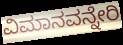
ವಿಮಾನವನ್ನೇರಿ